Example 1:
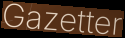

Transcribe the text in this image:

Gazetter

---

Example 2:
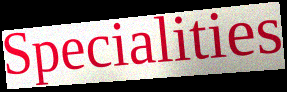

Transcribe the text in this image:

Specialities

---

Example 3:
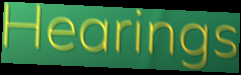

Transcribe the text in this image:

Hearings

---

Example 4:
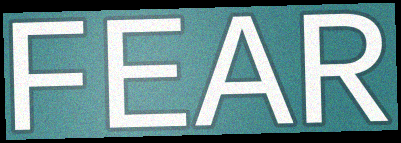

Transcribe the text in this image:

FEAR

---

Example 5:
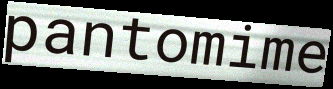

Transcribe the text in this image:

pantomime